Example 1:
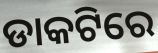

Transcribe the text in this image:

ଡାକଟିରେ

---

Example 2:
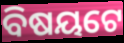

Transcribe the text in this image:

ବିଷୟଟେ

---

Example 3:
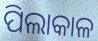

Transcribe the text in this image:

ପିଲାକାଳ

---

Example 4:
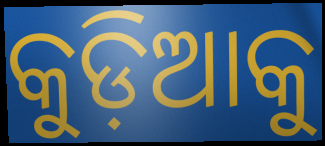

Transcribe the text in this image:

କୁଡ଼ିଆକୁ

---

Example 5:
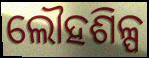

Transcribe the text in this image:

ଲୌହଶିଳ୍ପ